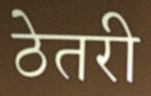
ठेतरी